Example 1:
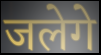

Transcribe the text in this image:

जलेगे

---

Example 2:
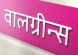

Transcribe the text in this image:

वालग्रीन्स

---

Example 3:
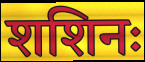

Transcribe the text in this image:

शशिनः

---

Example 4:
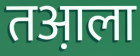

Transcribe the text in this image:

तआ़ला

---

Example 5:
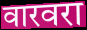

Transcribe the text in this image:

वारवरा